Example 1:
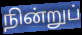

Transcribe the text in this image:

நின்றுப்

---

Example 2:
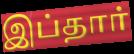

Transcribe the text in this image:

இப்தார்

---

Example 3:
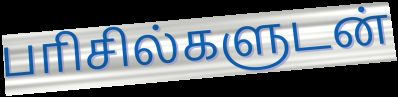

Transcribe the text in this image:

பரிசில்களுடன்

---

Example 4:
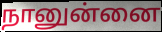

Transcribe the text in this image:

நானுன்னை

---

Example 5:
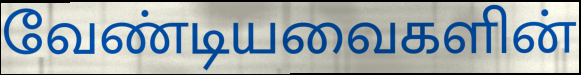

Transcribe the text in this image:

வேண்டியவைகளின்